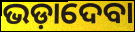
ଭଡ଼ାଦେବା